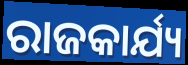
ରାଜକାର୍ଯ୍ୟ